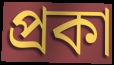
প্রকা